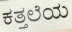
ಕತ್ತಲೆಯ